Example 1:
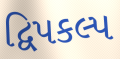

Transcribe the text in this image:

દ્વિપકલ્પ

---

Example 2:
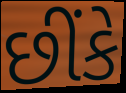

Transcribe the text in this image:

છીંકે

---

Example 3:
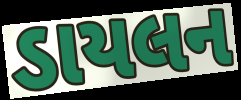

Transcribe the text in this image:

ડાયલન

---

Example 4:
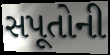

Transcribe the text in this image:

સપૂતોની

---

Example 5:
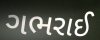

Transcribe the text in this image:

ગભરાઈ